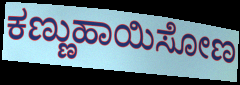
ಕಣ್ಣುಹಾಯಿಸೋಣ